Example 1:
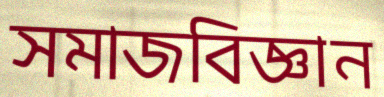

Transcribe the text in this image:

সমাজবিজ্ঞান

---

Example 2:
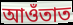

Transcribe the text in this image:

আওঁতাত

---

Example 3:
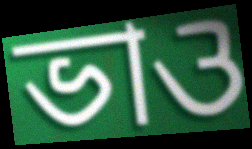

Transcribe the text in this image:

ভাও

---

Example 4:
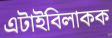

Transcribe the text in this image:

এটাইবিলাকক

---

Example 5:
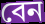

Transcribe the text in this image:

বেন